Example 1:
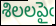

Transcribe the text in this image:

శిలలపైఁ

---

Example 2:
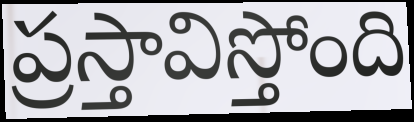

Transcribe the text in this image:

ప్రస్తావిస్తోంది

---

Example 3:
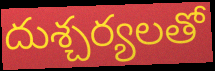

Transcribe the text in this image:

దుశ్చర్యలతో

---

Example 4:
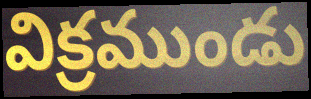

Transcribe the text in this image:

విక్రముండు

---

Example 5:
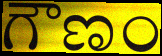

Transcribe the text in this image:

గౌణం